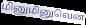
மினுமினுவென